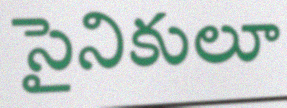
సైనికులూ